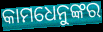
କାମଧେନୁଙ୍କର